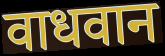
वाधवान